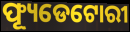
ଫ୍ୟୂଡେଟୋରୀ